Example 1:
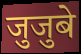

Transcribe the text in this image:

जुजुबे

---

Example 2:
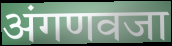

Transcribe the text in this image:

अंगणवजा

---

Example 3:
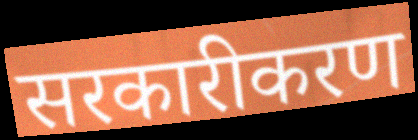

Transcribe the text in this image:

सरकारीकरण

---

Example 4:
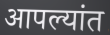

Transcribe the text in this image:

आपल्यांत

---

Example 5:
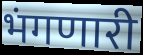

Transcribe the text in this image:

भंगणारी